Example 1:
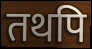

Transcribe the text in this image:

तथपि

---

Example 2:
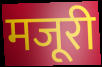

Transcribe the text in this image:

मजूरी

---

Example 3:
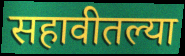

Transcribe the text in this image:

सहावीतल्या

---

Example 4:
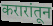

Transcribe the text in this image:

करारांतून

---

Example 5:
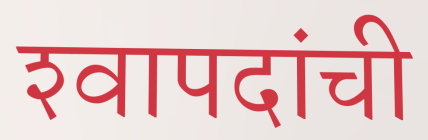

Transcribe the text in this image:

श्वापदांची